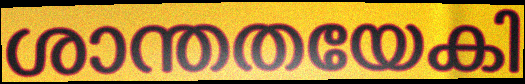
ശാന്തതയേകി